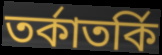
তৰ্কাতৰ্কি